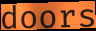
doors